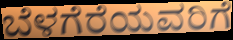
ಬೆಳಗೆರೆಯವರಿಗೆ